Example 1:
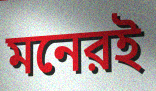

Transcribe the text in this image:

মনেরই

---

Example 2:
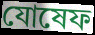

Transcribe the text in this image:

যোষেফ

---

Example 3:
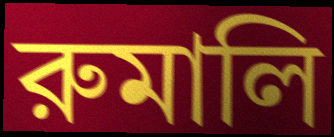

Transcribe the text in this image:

রুমালি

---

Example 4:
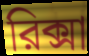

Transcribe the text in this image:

রিক্সা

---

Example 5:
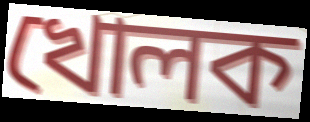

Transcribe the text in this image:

খোলক